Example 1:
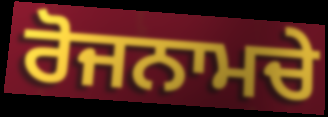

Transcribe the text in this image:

ਰੋਜਨਾਮਚੇ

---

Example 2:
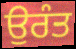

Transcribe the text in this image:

ਉਰੰਤ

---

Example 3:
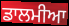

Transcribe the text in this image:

ਡਾਲਮੀਆ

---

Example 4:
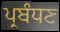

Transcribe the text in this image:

ਪ੍ਰਬੰਧਣ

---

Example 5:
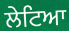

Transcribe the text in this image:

ਲੇਟਿਆ